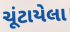
ચૂંટાયેલા